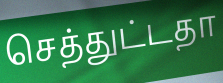
செத்துட்டதா